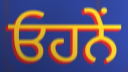
ਓਹਨੇੰ